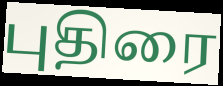
புதிரை